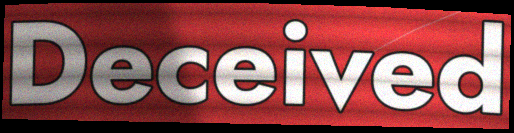
Deceived